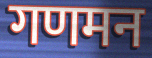
गणमन